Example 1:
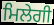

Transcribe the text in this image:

ਮਿਲੇਗੀ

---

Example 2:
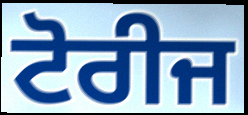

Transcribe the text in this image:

ਟੋਰੀਜ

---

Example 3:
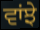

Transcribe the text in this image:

ਵਾਂਝੇ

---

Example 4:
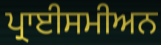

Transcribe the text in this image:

ਪ੍ਰਾਈਸਮੀਅਨ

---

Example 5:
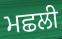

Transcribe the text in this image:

ਮਛਲੀ